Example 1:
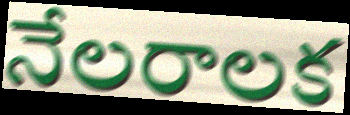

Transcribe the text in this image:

నేలరాలక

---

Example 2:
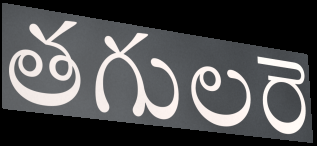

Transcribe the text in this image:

తగులరె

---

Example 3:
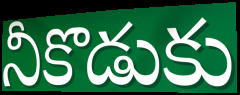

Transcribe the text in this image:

నీకొడుకు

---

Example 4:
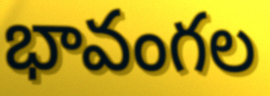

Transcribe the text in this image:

భావంగల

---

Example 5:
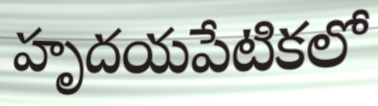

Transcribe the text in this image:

హృదయపేటికలో